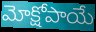
మోక్షోపాయే